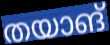
തയാങ്